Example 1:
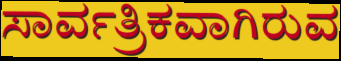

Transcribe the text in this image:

ಸಾರ್ವತ್ರಿಕವಾಗಿರುವ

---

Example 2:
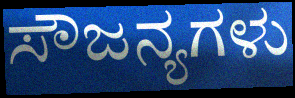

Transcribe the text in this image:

ಸೌಜನ್ಯಗಳು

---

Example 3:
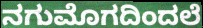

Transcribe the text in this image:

ನಗುಮೊಗದಿಂದಲೆ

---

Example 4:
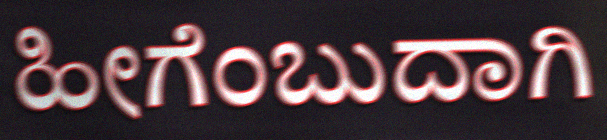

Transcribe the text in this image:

ಹೀಗೆಂಬುದಾಗಿ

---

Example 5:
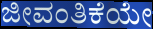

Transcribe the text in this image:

ಜೀವಂತಿಕೆಯೇ